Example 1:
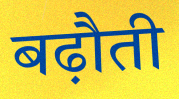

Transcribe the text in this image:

बढ़ौती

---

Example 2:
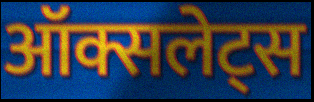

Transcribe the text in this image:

ऑक्सलेट्स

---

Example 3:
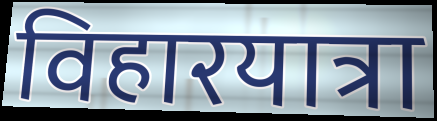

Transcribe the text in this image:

विहारयात्रा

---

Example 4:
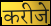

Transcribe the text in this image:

करीजे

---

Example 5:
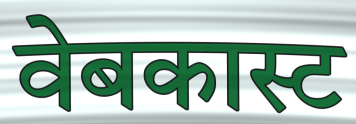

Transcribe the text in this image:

वेबकास्ट